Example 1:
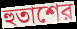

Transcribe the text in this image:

হুতাশের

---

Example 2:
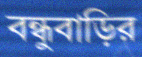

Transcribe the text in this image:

বন্ধুবাড়ির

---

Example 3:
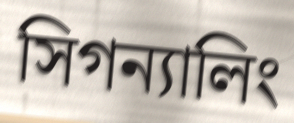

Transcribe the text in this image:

সিগন্যালিং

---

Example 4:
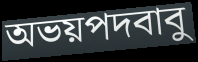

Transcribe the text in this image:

অভয়পদবাবু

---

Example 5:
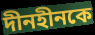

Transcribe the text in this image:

দীনহীনকে